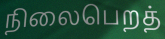
நிலைபெறத்